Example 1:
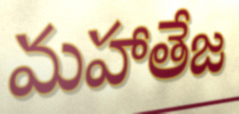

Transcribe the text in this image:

మహాతేజ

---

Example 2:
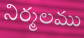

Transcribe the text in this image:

నిర్మలము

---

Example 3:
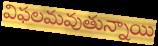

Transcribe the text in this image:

విఫలమవుతున్నాయి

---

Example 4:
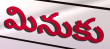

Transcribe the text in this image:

మినుకు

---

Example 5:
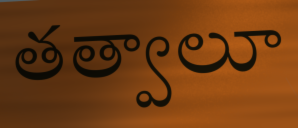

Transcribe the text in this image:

తత్వాలూ